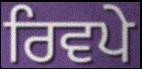
ਰਿਵਪੇ